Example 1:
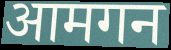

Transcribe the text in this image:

आमगन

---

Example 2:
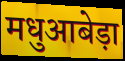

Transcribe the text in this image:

मधुआबेड़ा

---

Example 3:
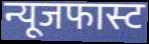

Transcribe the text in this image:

न्यूजफास्ट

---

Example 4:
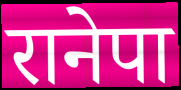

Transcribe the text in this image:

रानेपा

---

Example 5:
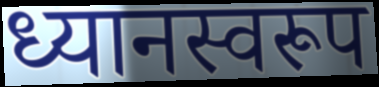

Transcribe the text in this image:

ध्यानस्वरूप